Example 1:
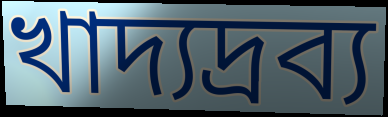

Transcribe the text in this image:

খাদ্যদ্রব্য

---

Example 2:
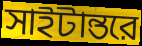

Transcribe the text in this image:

সাইটান্তরে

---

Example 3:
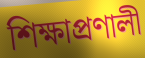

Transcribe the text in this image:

শিক্ষাপ্রণালী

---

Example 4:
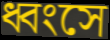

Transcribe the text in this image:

ধ্বংসে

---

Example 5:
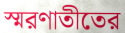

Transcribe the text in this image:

স্মরণাতীতের